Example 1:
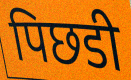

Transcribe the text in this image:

पिछडी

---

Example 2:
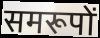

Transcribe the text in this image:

समरूपों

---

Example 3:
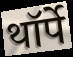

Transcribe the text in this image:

थॉर्पे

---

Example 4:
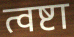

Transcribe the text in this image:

त्वष्टा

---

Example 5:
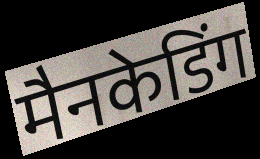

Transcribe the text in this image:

मैनकेडिंग